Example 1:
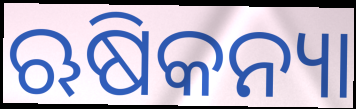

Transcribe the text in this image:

ଋଷିକନ୍ୟା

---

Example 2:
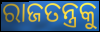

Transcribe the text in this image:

ରାଜତନ୍ତ୍ରକୁ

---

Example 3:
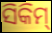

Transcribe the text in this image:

ସିକିମ୍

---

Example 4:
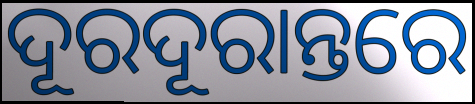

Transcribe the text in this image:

ଦୂରଦୂରାନ୍ତରେ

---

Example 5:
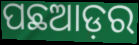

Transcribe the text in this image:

ପଛଆଡ଼ର